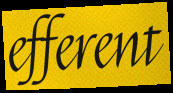
efferent